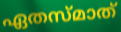
ഏതസ്മാത്